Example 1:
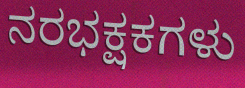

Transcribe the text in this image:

ನರಭಕ್ಷಕಗಳು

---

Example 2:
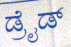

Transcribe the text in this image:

ಡ್ರೈಡ್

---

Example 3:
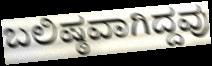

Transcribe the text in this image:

ಬಲಿಷ್ಠವಾಗಿದ್ದವು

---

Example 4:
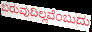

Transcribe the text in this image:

ಬರುವುದಿಲ್ಲವೆಂಬುದು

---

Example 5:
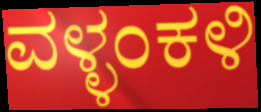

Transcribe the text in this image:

ವಳ್ಳಂಕಳಿ